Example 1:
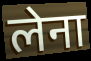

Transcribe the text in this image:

लेना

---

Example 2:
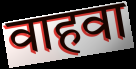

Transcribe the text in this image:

वाहवा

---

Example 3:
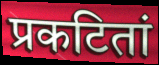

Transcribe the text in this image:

प्रकटितां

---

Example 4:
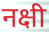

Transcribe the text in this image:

नक्षी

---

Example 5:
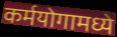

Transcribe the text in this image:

कर्मयोगामध्ये